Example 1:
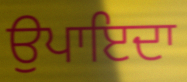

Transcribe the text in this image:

ਉਪਾਇਦਾ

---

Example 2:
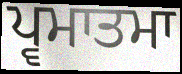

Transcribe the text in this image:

ਪ੍ਵਮਾਤਮਾ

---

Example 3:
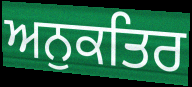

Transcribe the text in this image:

ਅਨੁਕਤਿਰ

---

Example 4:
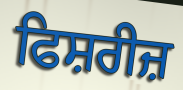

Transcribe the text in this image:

ਫਿਸ਼ਰੀਜ਼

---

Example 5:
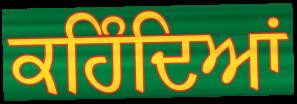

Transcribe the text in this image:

ਕਹਿੰਦਿਆਂ